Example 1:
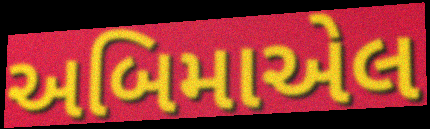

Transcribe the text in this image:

અબિમાએલ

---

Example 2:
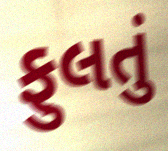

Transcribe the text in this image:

ફુલતું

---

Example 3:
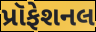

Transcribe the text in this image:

પ્રૉફેશનલ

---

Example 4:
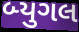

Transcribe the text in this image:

બ્યુગલ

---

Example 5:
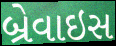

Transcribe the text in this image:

બ્રેવાઇસ